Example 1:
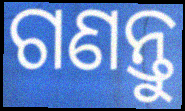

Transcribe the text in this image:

ଗଣନ୍ତୁ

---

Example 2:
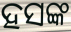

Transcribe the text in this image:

ହସଙ୍କ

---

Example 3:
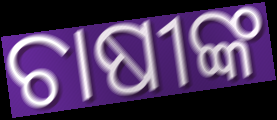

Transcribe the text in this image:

ଚାଷୀଙ୍କ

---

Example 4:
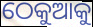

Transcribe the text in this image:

ଠେକୁଆକୁ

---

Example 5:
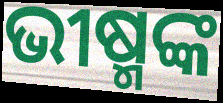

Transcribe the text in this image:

ଭୀଷ୍ମଙ୍କ